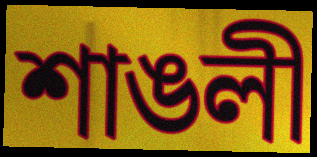
শাঙলী